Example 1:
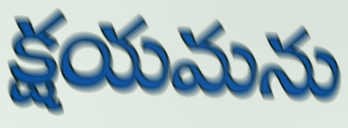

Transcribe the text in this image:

క్షయమను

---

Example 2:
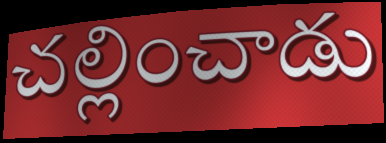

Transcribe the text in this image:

చల్లించాడు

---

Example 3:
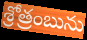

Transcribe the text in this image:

శ్రోత్రంబును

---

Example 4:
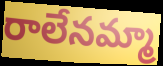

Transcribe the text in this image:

రాలేనమ్మా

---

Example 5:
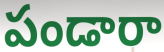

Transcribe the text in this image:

పండారా